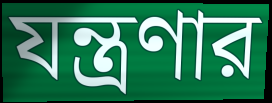
যন্ত্রণার